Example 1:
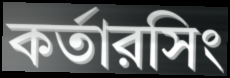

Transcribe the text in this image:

কর্তারসিং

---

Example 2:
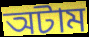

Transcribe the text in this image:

অটাম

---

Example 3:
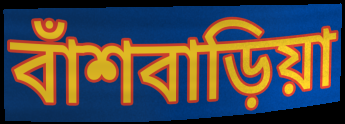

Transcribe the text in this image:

বাঁশবাড়িয়া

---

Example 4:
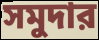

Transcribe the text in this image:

সমুদার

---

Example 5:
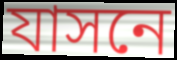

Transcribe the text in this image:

যাসনে